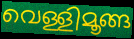
വെള്ളിമൂങ്ങ